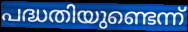
പദ്ധതിയുണ്ടെന്ന്